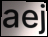
aej